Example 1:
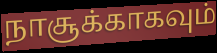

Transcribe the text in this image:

நாசூக்காகவும்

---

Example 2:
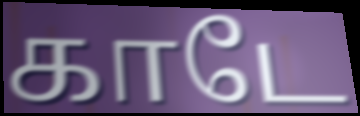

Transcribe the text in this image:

காடே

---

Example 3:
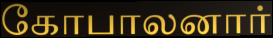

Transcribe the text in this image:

கோபாலனார்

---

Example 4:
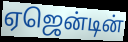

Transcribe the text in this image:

ஏஜென்டின்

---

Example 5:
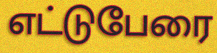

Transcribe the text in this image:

எட்டுபேரை